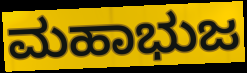
ಮಹಾಭುಜ